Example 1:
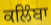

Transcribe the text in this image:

ਕਲਿੰਬਾ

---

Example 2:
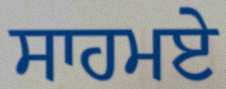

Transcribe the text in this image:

ਸਾਹਮਏ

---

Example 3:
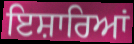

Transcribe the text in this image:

ਇਸ਼ਾਰਿਆਂ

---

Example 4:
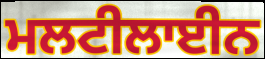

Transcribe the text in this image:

ਮਲਟੀਲਾਈਨ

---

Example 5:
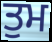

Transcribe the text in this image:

ਤੁਮ